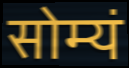
सोम्यं